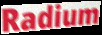
Radium